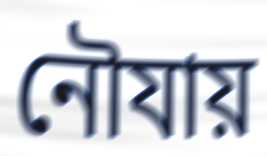
নৌযায়